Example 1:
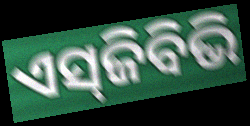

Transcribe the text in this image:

ଏସ୍‌ଜିବିଭି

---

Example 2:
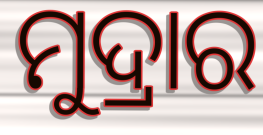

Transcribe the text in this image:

ମୁଦ୍ରାର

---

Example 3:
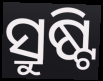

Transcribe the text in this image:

ସ୍ରୁଷ୍ଟି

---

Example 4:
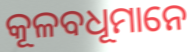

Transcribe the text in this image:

କୂଳବଧୂମାନେ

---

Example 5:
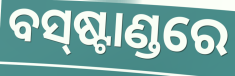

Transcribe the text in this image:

ବସ୍‍ଷ୍ଟାଣ୍ଡରେ